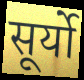
सूर्यो